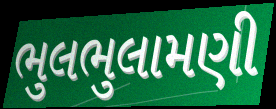
ભુલભુલામણી